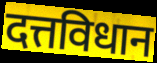
दत्तविधान